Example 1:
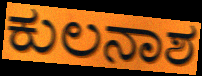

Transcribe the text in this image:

ಕುಲನಾಶ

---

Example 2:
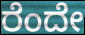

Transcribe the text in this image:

ರೆಂದೇ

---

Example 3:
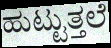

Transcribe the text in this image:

ಹುಟ್ಟುತ್ತಲೆ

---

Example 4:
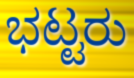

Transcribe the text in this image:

ಭಟ್ಟರು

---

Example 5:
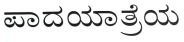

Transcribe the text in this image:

ಪಾದಯಾತ್ರೆಯ